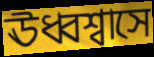
ঊধ্বশ্বাসে